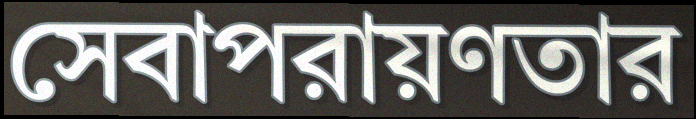
সেবাপরায়ণতার